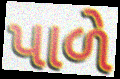
પાળે